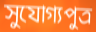
সুযোগ্যপুত্র